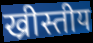
ख्रीस्तीय